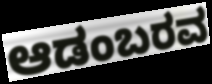
ಆಡಂಬರವ